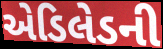
એડિલેડની